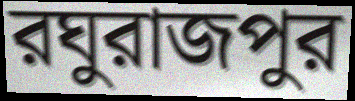
রঘুরাজপুর